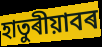
হাতুৰীয়াবৰ